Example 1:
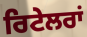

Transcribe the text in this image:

ਰਿਟੇਲਰਾਂ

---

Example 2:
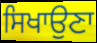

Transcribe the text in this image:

ਸਿਖਾਉਣਾ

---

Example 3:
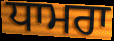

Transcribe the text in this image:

ਧਾਮਰਾ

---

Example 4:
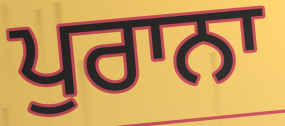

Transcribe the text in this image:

ਪੁਰਾਨਾ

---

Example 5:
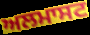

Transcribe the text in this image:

ਅਲਮਾਸਟ